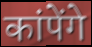
कांपेंगे